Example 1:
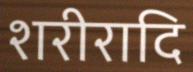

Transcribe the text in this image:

शरीरादि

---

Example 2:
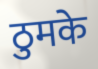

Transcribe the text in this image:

ठुमके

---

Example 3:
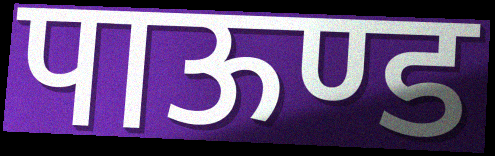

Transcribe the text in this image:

पाऊण्ड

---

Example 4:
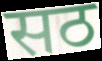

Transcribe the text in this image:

सठ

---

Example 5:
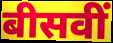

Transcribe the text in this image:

बीसवीं